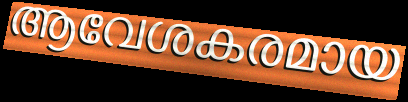
ആവേശകരമായ